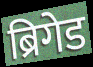
ब्रिगेड